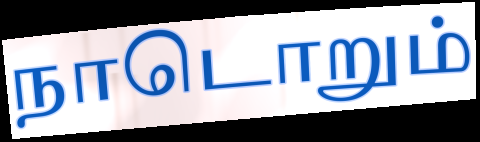
நாடொறும்